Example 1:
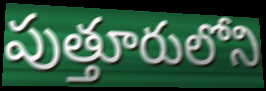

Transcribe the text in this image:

పుత్తూరులోని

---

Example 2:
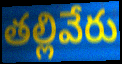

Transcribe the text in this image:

తల్లివేరు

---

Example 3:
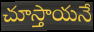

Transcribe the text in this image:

చూస్తాయనే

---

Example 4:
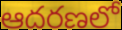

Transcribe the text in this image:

ఆదరణలో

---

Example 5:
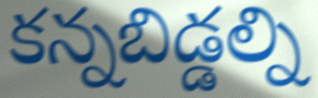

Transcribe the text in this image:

కన్నబిడ్డల్ని